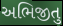
અભિજીતુ